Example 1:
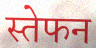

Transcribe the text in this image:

स्तेफन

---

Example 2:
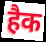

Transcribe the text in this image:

हैक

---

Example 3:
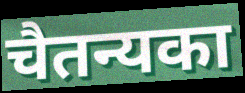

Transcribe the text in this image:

चैतन्यका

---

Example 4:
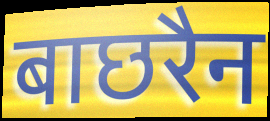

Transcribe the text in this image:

बाछरैन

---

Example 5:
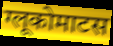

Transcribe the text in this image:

ग्लूकोमाटस